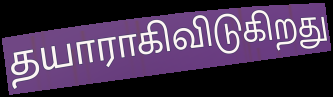
தயாராகிவிடுகிறது